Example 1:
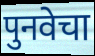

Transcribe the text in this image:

पुनवेचा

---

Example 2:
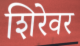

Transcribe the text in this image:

शिरेवर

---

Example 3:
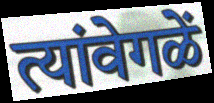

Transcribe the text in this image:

त्यांवेगळें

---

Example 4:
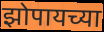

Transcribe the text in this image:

झोपायच्या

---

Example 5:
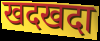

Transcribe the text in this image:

खदखदा